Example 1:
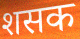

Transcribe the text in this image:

शसक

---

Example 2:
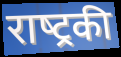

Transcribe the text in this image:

राष्ट्रकी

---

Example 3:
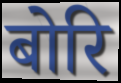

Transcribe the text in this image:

बोरि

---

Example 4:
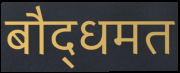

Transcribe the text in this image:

बौद्धमत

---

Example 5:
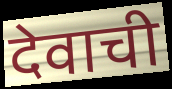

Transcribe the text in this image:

देवाची